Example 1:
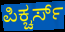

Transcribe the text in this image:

ಪಿಕ್ಚರ್ಸ್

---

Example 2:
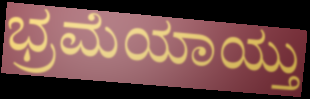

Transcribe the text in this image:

ಭ್ರಮೆಯಾಯ್ತು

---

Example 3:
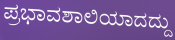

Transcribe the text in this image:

ಪ್ರಭಾವಶಾಲಿಯಾದದ್ದು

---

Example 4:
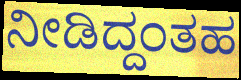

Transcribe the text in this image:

ನೀಡಿದ್ದಂತಹ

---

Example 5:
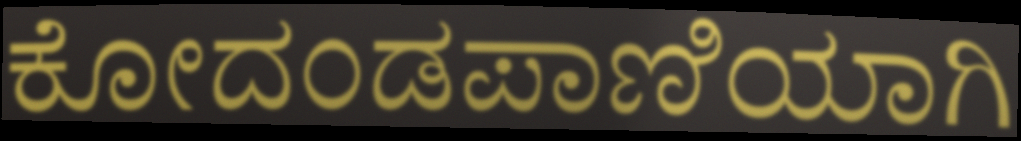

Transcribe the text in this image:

ಕೋದಂಡಪಾಣಿಯಾಗಿ